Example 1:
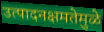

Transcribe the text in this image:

उत्पादनक्षमतेमुळे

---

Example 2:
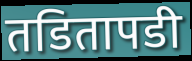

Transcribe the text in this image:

तडितापडी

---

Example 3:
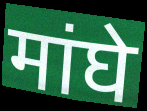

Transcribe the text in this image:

मांघे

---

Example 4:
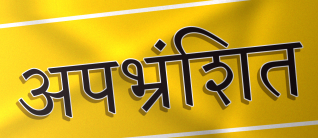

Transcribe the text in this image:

अपभ्रंशित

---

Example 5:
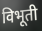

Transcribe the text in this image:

विभूती